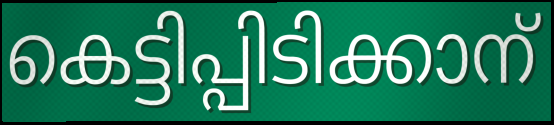
കെട്ടിപ്പിടിക്കാന്